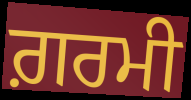
ਗ਼ਰਮੀ